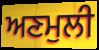
ਅਣਮੁਲੀ